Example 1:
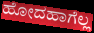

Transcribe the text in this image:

ಹೋದಹಾಗೆಲ್ಲ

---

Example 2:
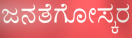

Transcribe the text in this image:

ಜನತೆಗೋಸ್ಕರ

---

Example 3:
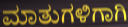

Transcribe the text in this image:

ಮಾತುಗಳಿಗಾಗಿ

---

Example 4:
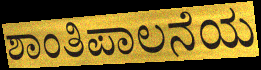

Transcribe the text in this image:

ಶಾಂತಿಪಾಲನೆಯ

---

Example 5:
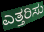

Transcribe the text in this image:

ಎತ್ತರಿಸು